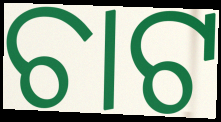
ଚାଟ